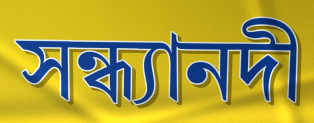
সন্ধ্যানদী